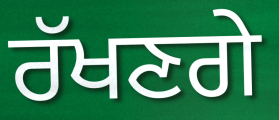
ਰੱਖਣਗੇ